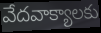
వేదవాక్యాలకు